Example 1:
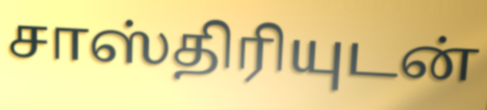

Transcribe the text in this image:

சாஸ்திரியுடன்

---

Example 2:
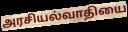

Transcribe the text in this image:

அரசியல்வாதியை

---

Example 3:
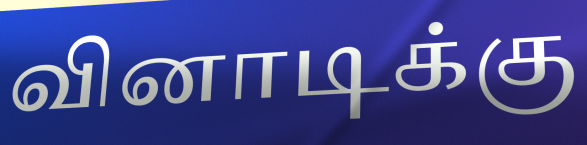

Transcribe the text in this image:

வினாடிக்கு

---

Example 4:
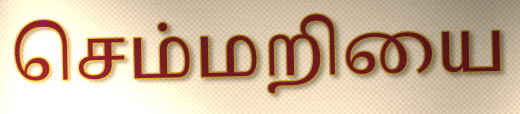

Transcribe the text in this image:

செம்மறியை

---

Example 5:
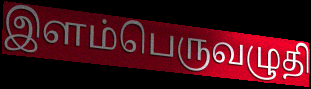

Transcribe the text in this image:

இளம்பெருவழுதி